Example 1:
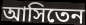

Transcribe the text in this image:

আসিতেন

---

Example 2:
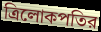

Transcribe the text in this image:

ত্রিলোকপতির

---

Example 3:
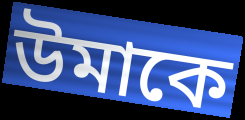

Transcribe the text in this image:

উমাকে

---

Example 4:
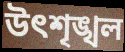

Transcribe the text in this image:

উৎশৃঙ্খল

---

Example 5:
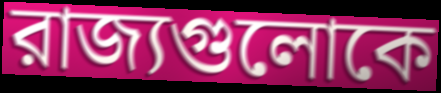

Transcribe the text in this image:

রাজ্যগুলোকে